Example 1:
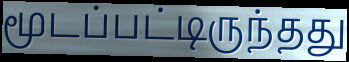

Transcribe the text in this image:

மூடப்பட்டிருந்தது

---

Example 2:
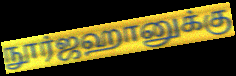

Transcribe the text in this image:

நூர்ஜஹானுக்கு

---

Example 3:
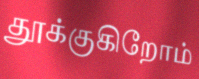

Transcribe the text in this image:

தூக்குகிறோம்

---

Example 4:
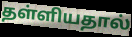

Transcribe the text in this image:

தள்ளியதால்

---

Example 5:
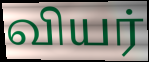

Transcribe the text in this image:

வியர்